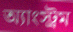
অ্যাংস্ট্রম